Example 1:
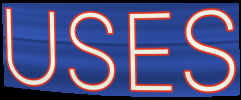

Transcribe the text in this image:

USES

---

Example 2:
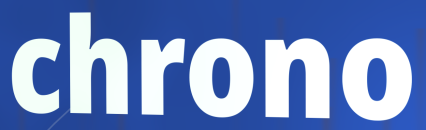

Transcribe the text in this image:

chrono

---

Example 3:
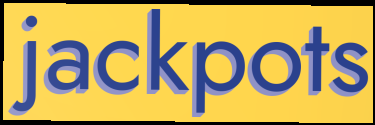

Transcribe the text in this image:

jackpots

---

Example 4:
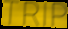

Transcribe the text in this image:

TRIP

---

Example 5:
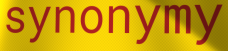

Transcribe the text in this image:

synonymy